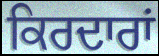
ਕਿਰਦਾਰਾਂ